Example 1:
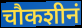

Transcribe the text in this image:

चौकशीनं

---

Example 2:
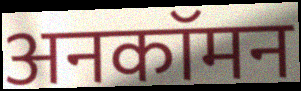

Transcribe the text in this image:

अनकॉमन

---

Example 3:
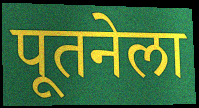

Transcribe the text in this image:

पूतनेला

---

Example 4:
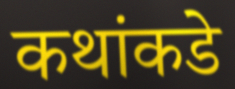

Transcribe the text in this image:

कथांकडे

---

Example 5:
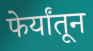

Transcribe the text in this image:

फेर्यांतून